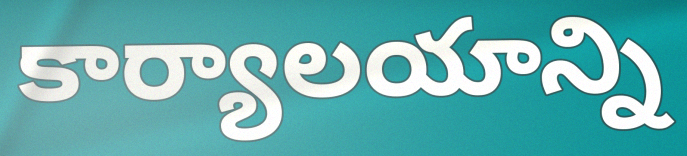
కార్యాలయాన్ని